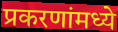
प्रकरणांमध्ये